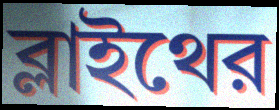
ব্লাইথের